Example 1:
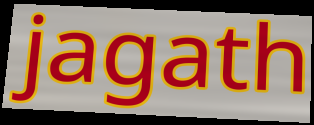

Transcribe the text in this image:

jagath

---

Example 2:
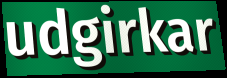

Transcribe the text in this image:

udgirkar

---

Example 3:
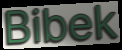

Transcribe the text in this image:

Bibek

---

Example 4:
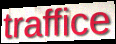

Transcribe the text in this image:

traffice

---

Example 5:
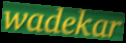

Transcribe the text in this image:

wadekar